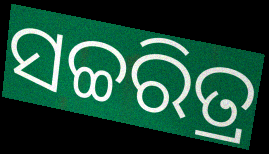
ସଚ୍ଚରିତ୍ର